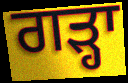
ਗੜ੍ਹਾ